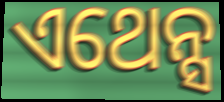
ଏଥେନ୍ସ